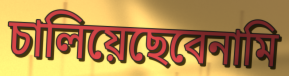
চালিয়েছেবেনামি